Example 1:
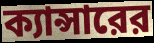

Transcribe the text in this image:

ক্যান্সারের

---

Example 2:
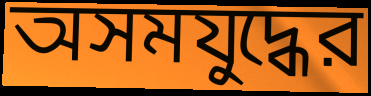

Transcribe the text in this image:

অসমযুদ্ধের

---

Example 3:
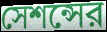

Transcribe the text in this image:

সেশন্সের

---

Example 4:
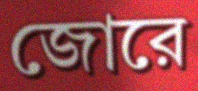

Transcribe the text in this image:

জোরে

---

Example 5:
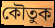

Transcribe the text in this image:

কৌতুক